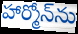
హార్మోన్‌ను